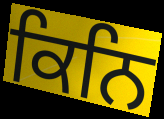
ਕਿਨਿ